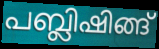
പബ്ലിഷിങ്ങ്